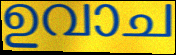
ഉവാച